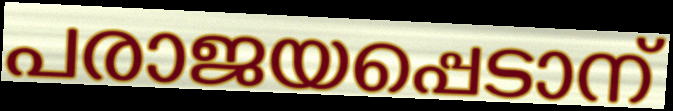
പരാജയപ്പെടാന്